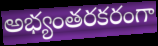
అభ్యంతరకరంగా